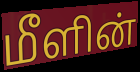
மீளின்